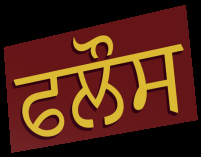
ਫਲੌਸ